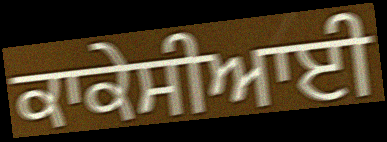
ਕਾਕੇਸੀਆਈ